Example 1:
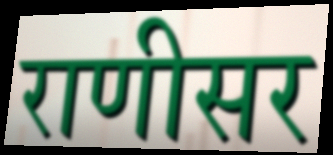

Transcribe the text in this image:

राणीसर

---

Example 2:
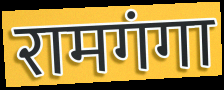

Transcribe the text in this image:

रामगंगा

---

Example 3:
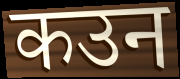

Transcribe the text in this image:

कउन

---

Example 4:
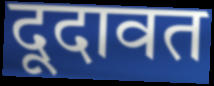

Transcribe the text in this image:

दूदावत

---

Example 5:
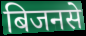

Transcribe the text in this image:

बिजनसे